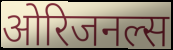
ओरिजनल्स